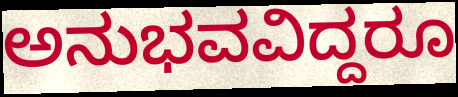
ಅನುಭವವಿದ್ದರೂ